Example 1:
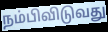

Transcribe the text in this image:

நம்பிவிடுவது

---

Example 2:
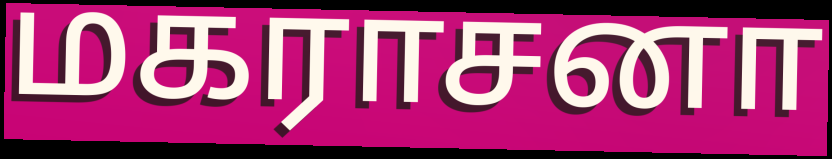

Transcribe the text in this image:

மகராசனா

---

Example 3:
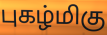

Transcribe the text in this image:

புகழ்மிகு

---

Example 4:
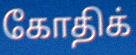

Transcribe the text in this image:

கோதிக்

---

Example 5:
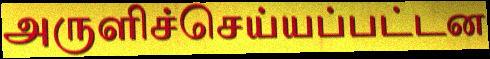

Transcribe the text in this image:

அருளிச்செய்யப்பட்டன